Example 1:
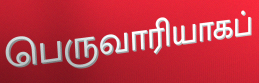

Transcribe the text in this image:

பெருவாரியாகப்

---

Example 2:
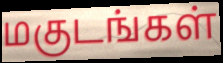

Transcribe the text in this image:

மகுடங்கள்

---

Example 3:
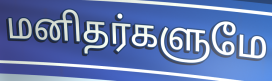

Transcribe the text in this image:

மனிதர்களுமே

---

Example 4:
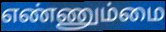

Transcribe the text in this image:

எண்ணும்மை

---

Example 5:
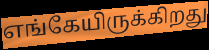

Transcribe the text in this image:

எங்கேயிருக்கிறது